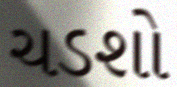
ચડશો